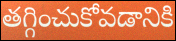
తగ్గించుకోవడానికి